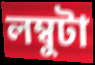
লম্বুটা